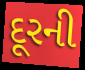
દૂરની